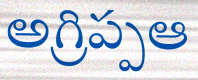
అగ్రిప్పఆ